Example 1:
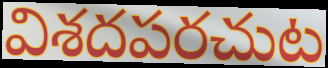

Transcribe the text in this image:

విశదపరచుట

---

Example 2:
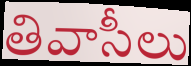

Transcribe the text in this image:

తివాసీలు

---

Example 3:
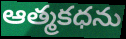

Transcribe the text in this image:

ఆత్మకధను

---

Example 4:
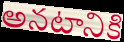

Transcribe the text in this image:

అనటానికి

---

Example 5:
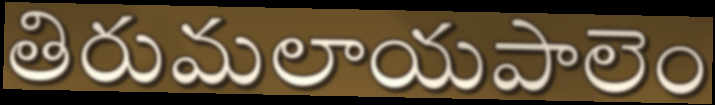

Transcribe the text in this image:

తిరుమలాయపాలెం